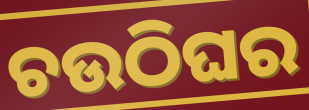
ଚଉଠିଘର